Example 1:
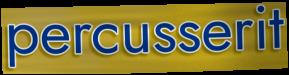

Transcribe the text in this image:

percusserit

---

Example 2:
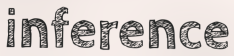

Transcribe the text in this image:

inference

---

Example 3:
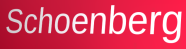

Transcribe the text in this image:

Schoenberg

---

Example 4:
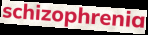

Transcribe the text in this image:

schizophrenia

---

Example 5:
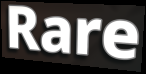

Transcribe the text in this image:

Rare